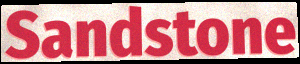
Sandstone